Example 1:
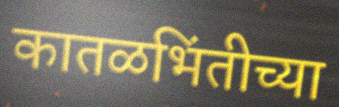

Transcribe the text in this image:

कातळभिंतीच्या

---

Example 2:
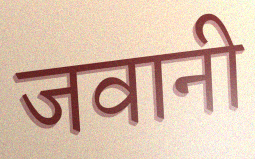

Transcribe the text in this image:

जवानी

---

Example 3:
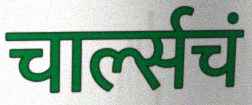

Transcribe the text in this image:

चार्ल्सचं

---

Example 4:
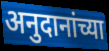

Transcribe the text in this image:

अनुदानांच्या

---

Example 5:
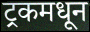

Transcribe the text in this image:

ट्रकमधून